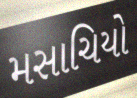
મસાચિયો